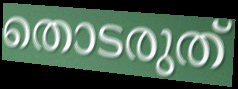
തൊടരുത്